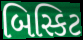
બિસ્કિટ